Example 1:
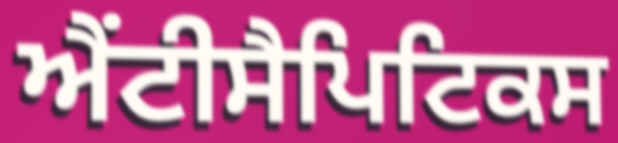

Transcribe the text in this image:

ਐਂਟੀਸੈਪਿਟਿਕਸ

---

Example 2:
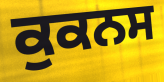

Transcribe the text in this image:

ਕੁਕਨਸ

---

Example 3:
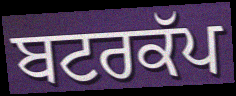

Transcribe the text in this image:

ਬਟਰਕੱਪ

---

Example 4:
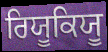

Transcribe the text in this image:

ਰਿਯੂਕਿਯੂ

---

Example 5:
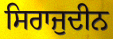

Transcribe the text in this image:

ਸਿਰਾਜੁਦੀਨ